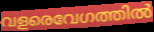
വളരെവേഗത്തിൽ